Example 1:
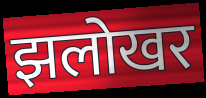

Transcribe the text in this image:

झलोखर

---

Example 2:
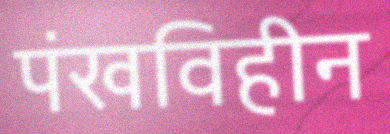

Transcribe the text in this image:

पंखविहीन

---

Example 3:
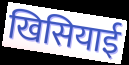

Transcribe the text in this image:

खिसियाई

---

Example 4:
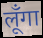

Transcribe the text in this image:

लूँगा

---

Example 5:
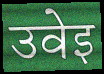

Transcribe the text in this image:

उवेइ